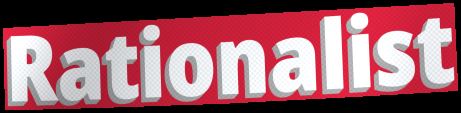
Rationalist